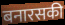
बनारसकी